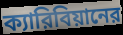
ক্যারিবিয়ানের